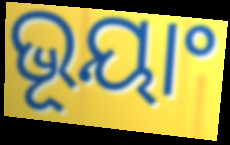
ଭୂୟାଂ